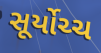
સૂર્યોચ્ચ